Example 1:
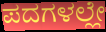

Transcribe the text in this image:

ಪದಗಳಲ್ಲೇ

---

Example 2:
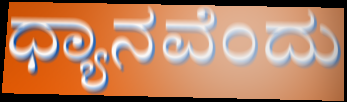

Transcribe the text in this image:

ಧ್ಯಾನವೆಂದು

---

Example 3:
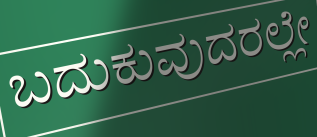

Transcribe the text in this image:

ಬದುಕುವುದರಲ್ಲೇ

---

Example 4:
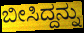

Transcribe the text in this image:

ಬೀಸಿದ್ದನ್ನು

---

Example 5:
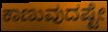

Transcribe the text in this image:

ಕಾಣುವುದಷ್ಟೇ